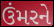
ઉંમરને